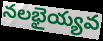
నలభైయ్యవ